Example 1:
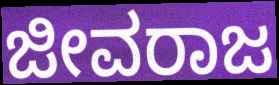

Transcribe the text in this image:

ಜೀವರಾಜ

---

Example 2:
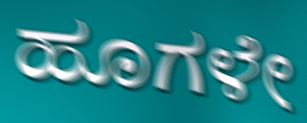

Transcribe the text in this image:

ಹೂಗಳೇ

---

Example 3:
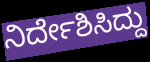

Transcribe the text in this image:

ನಿರ್ದೇಶಿಸಿದ್ದು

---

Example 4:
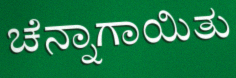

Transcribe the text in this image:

ಚೆನ್ನಾಗಾಯಿತು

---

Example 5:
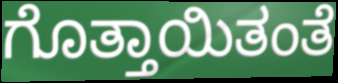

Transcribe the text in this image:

ಗೊತ್ತಾಯಿತಂತೆ